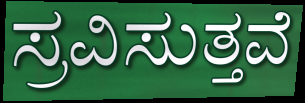
ಸ್ರವಿಸುತ್ತವೆ